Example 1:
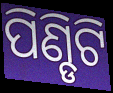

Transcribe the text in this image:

ପିଣ୍ଡିଟି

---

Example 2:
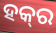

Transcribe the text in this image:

ହକ୍‌ର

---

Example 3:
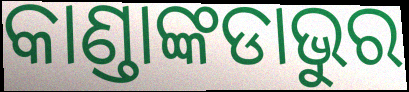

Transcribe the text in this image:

କାଣ୍ଡାଙ୍କଡାଭୁର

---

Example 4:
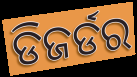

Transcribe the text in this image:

ଡିଜର୍ଡର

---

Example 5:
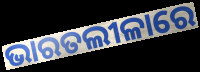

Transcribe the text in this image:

ଭାରତଲୀଳାରେ